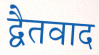
द्वैतवाद